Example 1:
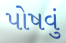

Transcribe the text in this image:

પોષવું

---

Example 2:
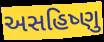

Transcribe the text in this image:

અસહિષ્ણુ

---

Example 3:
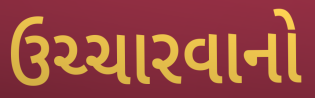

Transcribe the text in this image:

ઉચ્ચારવાનો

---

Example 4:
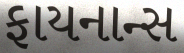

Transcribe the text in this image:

ફાયનાન્સ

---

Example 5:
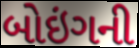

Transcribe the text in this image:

બોઇંગની